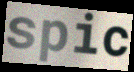
spic